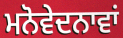
ਮਨੋਵੇਦਨਾਵਾਂ